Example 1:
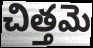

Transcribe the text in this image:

చిత్తమె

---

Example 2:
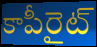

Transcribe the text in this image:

కాపీరైట్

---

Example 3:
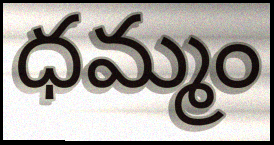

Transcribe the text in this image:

ధమ్మం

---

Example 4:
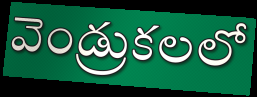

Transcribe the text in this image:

వెండ్రుకలలో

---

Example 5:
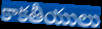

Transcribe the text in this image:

కాకతీయులు